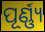
ପୂର୍ଣ୍ଣ୍ୟ